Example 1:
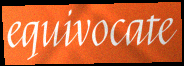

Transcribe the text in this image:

equivocate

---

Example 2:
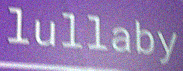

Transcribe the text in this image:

lullaby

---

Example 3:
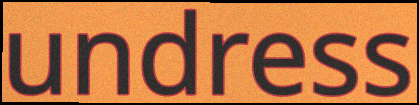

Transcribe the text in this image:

undress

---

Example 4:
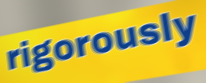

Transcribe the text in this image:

rigorously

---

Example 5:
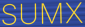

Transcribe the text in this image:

SUMX